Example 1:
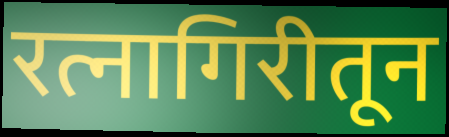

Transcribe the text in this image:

रत्नागिरीतून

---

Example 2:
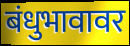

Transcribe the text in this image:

बंधुभावावर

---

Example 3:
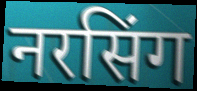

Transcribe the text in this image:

नरसिंग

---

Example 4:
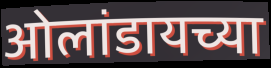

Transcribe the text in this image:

ओलांडायच्या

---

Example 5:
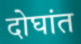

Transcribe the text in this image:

दोघांत